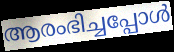
ആരംഭിച്ചപ്പോൾ